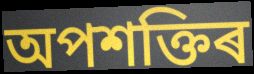
অপশক্তিৰ